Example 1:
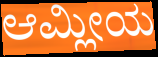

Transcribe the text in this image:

ಆಮ್ಲೀಯ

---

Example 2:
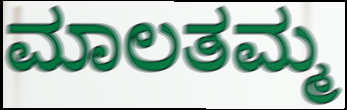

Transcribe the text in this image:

ಮಾಲತಮ್ಮ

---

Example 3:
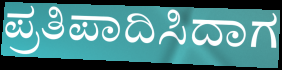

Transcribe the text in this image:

ಪ್ರತಿಪಾದಿಸಿದಾಗ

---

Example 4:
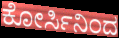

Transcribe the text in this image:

ಕೋರ್ಸಿನಿಂದ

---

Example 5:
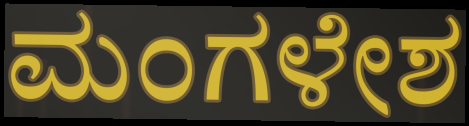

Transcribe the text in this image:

ಮಂಗಳೇಶ